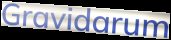
Gravidarum